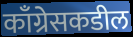
काँग्रेसकडील